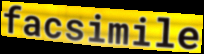
facsimile